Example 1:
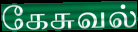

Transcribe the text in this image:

கேசுவல்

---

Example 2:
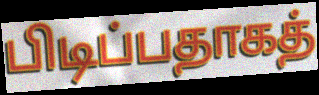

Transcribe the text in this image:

பிடிப்பதாகத்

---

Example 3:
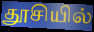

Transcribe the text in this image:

தூசியில்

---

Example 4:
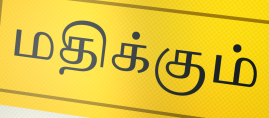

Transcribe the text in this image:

மதிக்கும்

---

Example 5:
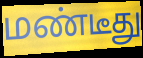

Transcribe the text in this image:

மண்டீது